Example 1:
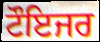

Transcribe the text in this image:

ਟੌਇਜਰ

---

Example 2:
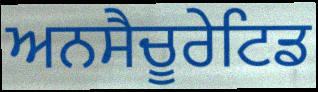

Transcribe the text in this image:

ਅਨਸੈਚੂਰੇਟਿਡ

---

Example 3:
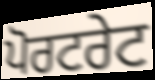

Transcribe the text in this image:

ਪੋਰਟਰੇਟ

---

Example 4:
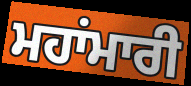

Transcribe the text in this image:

ਮਹਾਂਮਾਰੀ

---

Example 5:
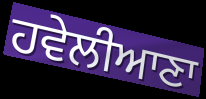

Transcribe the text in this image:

ਹਵੇਲੀਆਣਾ